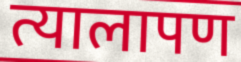
त्यालापण